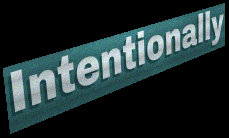
Intentionally